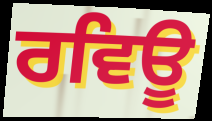
ਰਵਿਊ